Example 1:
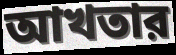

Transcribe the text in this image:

আখতার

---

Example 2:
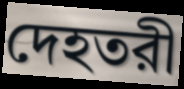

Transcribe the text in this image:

দেহতরী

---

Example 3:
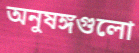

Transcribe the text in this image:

অনুষঙ্গগুলো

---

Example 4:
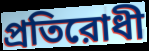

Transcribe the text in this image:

প্রতিরোধী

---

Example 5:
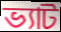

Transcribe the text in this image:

ভ্যাট